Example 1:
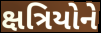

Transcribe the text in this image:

ક્ષત્રિયોને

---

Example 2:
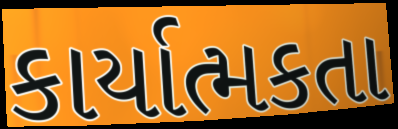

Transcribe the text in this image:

કાર્યાત્મકતા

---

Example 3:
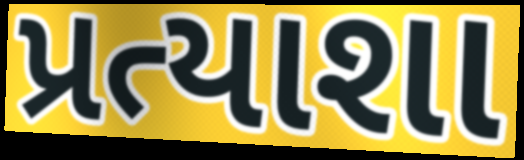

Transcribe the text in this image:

પ્રત્યાશા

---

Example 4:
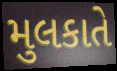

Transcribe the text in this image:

મુલકાતે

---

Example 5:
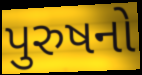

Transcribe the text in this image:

પુરુષનો